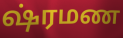
ஷ்ரமண